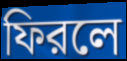
ফিরলে